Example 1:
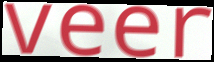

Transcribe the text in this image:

veer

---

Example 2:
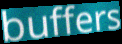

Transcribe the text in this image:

buffers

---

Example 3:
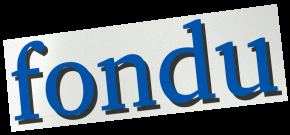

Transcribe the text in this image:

fondu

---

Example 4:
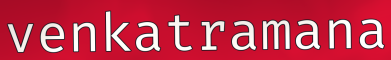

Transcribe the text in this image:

venkatramana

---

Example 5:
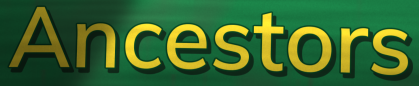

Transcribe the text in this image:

Ancestors